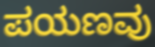
ಪಯಣವು